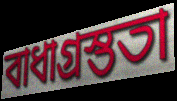
বাধাগ্ৰস্ততা